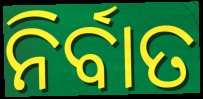
ନିର୍ବାତ